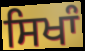
ਸਿਖਾੰ